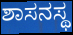
ಶಾಸನಸ್ಥ